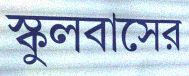
স্কুলবাসের